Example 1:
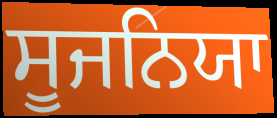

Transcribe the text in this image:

ਸੂਜਨਿਯਾ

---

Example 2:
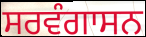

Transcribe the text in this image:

ਸਰਵੰਗਾਸਨ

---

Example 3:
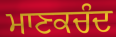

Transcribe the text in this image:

ਮਾਣਕਚੰਦ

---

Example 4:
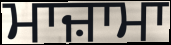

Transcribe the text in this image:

ਮਾਜ਼ਾਮਾ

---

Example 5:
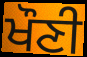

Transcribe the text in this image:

ਖੌਣੀ